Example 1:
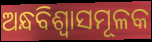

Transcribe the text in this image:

ଅନ୍ଧବିଶ୍ୱାସମୂଳକ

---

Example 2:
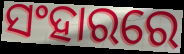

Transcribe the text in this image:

ସଂହାରରେ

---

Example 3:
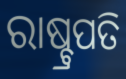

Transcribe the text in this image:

ରାଷ୍ଚ୍ରପତି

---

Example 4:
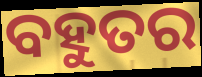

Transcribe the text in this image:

ବହୁତର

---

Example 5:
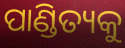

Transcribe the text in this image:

ପାଣ୍ଡିତ୍ୟକୁ